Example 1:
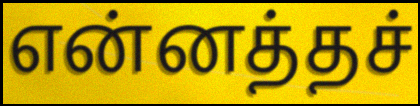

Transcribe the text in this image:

என்னத்தச்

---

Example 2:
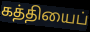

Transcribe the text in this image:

கத்தியைப்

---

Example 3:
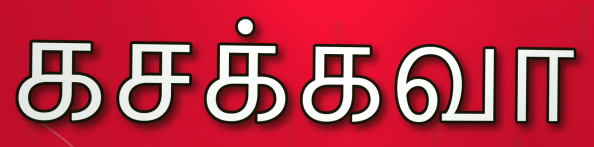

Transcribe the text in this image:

கசக்கவா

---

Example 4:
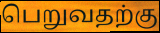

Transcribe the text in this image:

பெறுவதற்கு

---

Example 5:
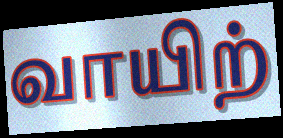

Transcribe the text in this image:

வாயிற்